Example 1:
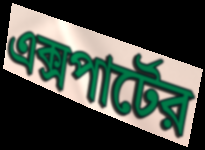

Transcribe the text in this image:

এক্সপার্টের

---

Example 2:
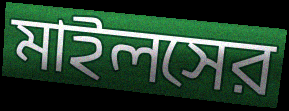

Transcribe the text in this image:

মাইলসের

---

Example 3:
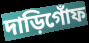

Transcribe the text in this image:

দাড়িগোঁফ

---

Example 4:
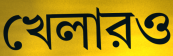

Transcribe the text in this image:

খেলারও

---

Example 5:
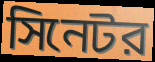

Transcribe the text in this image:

সিনেটর